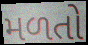
મળતો